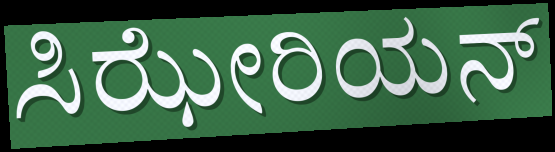
ಸಿಝೇರಿಯನ್